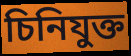
চিনিযুক্ত